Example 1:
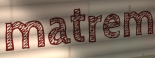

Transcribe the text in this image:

matrem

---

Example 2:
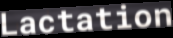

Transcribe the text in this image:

Lactation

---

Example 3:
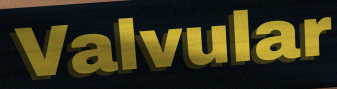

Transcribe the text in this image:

Valvular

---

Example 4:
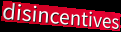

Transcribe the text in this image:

disincentives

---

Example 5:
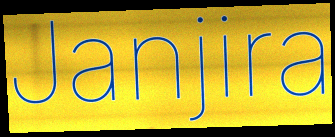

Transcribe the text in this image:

Janjira